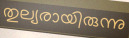
തുല്യരായിരുന്നു